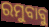
ରମୁବାବୁ